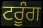
ਟਰੂੰਗ